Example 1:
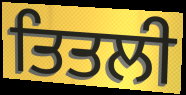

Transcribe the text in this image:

ਤਿਤਲੀ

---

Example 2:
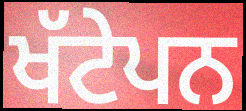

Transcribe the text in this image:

ਖੱਟੇਪਨ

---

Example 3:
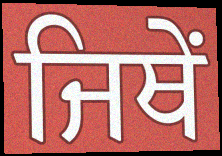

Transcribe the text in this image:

ਜਿਥੇਂ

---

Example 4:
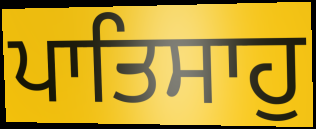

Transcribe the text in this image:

ਪਾਤਿਸਾਹੁ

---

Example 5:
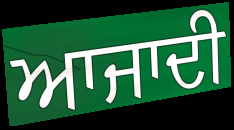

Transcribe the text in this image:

ਆਜਾਦੀ